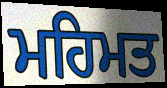
ਮਹਿਮਤ